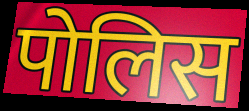
पोलिस